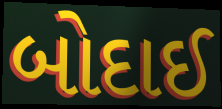
બોદાઈ